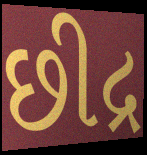
છીદ્ર